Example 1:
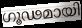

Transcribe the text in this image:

ഗൂഢമായി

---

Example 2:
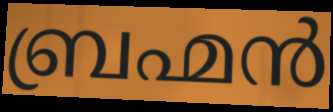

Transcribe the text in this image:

ബ്രഹ്മൻ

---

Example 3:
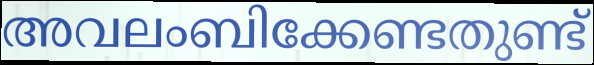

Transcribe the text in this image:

അവലംബിക്കേണ്ടതുണ്ട്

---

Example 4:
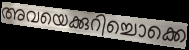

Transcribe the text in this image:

അവയെക്കുറിച്ചൊക്കെ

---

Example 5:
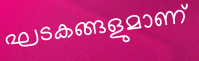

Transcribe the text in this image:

ഘടകങ്ങളുമാണ്